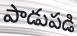
పాడుపడి